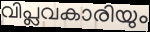
വിപ്ലവകാരിയും